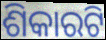
ଶିକାରଟି